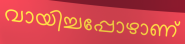
വായിച്ചപ്പോഴാണ്